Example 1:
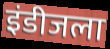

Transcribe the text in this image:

इंडीजला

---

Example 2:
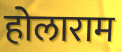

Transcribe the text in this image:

होलाराम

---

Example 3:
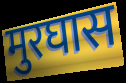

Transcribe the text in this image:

मुरघास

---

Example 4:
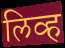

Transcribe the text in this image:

लिव्ह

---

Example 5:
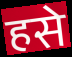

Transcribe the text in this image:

हसे